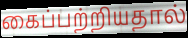
கைப்பற்றியதால்